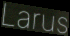
Larus